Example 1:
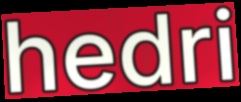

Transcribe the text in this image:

hedri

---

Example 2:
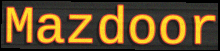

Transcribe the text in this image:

Mazdoor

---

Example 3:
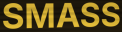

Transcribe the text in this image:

SMASS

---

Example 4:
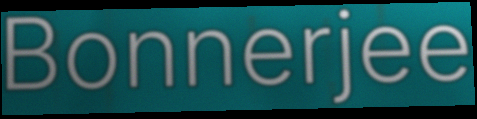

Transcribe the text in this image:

Bonnerjee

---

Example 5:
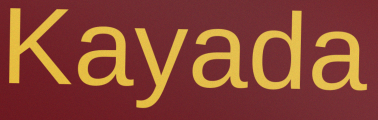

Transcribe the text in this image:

Kayada